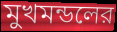
মুখমন্ডলের